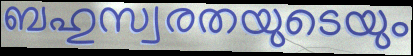
ബഹുസ്വരതയുടെയും